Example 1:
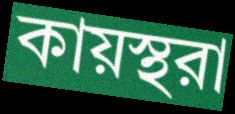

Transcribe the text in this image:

কায়স্থরা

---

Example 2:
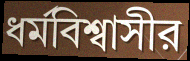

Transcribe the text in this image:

ধর্মবিশ্বাসীর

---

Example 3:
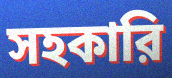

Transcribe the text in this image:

সহকারি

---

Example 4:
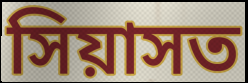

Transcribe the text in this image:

সিয়াসত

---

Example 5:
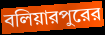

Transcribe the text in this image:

বলিয়ারপুরের